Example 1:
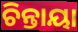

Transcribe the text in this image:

ଚିନ୍ତାୟା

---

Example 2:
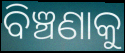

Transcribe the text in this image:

ବିଞ୍ଚଣାକୁ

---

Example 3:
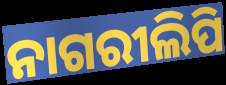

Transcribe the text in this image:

ନାଗରୀଲିପି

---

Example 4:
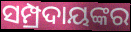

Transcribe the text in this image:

ସମ୍ପ୍ରଦାୟଙ୍କର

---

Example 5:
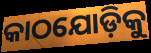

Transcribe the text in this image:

କାଠଯୋଡ଼ିକୁ